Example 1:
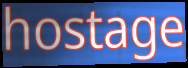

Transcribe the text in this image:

hostage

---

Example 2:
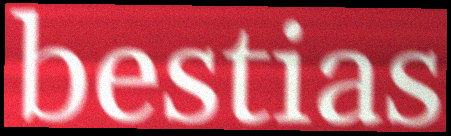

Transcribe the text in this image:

bestias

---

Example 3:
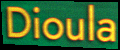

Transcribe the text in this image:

Dioula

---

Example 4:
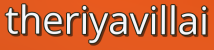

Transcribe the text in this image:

theriyavillai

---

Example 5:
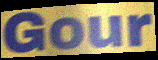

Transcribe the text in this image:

Gour